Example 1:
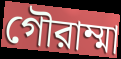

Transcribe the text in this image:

গৌরাম্মা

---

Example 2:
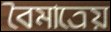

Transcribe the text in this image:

বৈমাত্রেয়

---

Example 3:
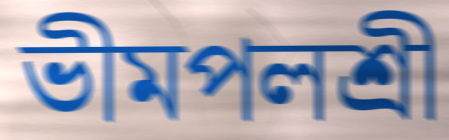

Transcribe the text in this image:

ভীমপলশ্রী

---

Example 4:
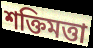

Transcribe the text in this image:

শক্তিমত্তা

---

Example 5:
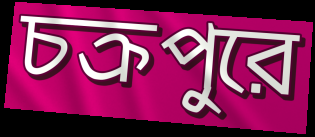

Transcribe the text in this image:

চক্রপুরে